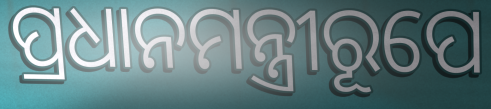
ପ୍ରଧାନମନ୍ତ୍ରୀରୂପେ